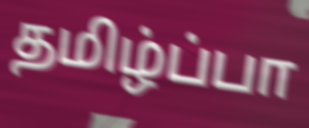
தமிழ்ப்பா